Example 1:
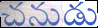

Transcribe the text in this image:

చనుడు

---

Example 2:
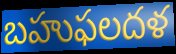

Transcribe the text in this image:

బహుఫలదళ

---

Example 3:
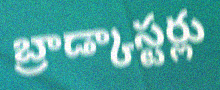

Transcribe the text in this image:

బ్రాడ్కాస్టర్లు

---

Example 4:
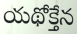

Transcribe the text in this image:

యథోక్తేన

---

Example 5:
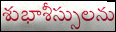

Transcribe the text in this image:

శుభాశీస్సులను